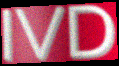
IVD